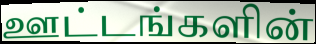
ஊட்டங்களின்